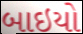
બાઇયો